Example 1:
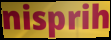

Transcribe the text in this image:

nisprih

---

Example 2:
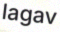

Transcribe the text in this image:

lagav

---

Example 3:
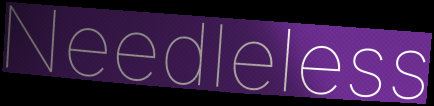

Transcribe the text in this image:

Needleless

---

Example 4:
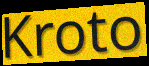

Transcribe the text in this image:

Kroto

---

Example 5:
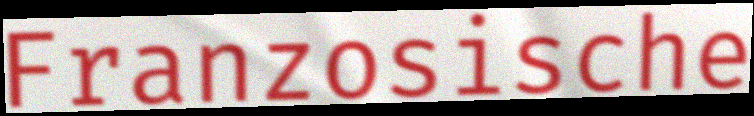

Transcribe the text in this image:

Franzosische